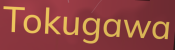
Tokugawa